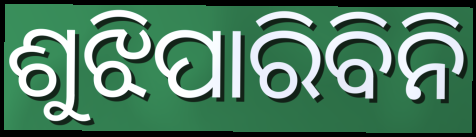
ଶୁଝିପାରିବିନି